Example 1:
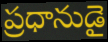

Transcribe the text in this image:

ప్రధానుడై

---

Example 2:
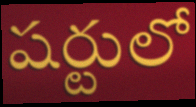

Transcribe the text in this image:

షర్టులో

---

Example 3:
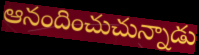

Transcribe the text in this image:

ఆనందించుచున్నాడు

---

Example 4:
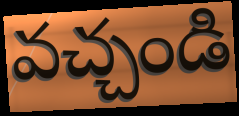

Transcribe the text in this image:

వచ్చండి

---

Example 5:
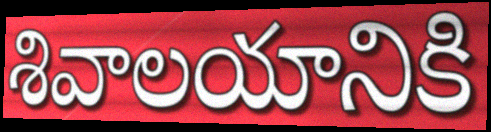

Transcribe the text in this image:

శివాలయానికి